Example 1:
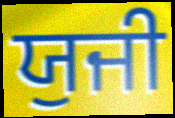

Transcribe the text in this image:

ਯੁਜੀ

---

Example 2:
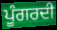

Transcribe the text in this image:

ਪੂੰਗਰਦੀ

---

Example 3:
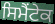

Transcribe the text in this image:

ਸਿਮੈਂਟੇਕ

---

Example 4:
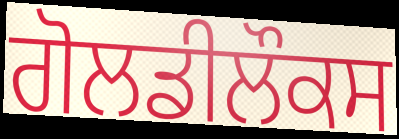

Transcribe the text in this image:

ਗੋਲਡੀਲੌਕਸ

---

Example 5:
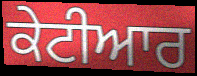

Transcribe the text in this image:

ਕੇਟੀਆਰ